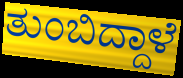
ತುಂಬಿದ್ದಾಳೆ